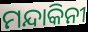
ମନ୍ଦାକିନୀ